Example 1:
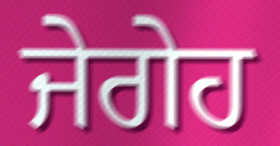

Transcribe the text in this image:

ਜੇਗੇਹ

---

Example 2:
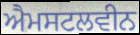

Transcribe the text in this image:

ਐਮਸਟਲਵੀਨ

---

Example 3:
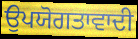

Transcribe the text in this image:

ਉਪਯੋਗਤਾਵਾਦੀ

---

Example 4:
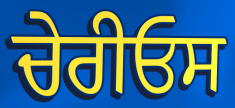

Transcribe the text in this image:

ਚੇਰੀਓਸ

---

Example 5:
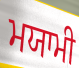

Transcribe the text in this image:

ਮਯਾਮੀ